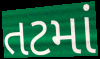
તટમાં